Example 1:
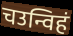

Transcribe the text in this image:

चउन्विहं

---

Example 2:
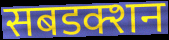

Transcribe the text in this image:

सबडक्शन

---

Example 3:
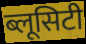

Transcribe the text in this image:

ब्लूसिटी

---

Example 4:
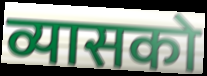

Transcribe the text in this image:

व्यासको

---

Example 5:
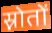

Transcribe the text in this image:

स्नोतों